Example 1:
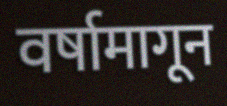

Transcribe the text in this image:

वर्षामागून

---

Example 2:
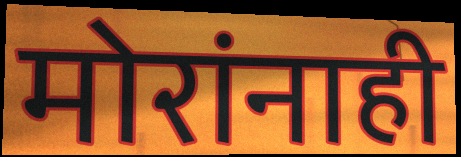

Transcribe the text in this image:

मोरांनाही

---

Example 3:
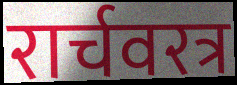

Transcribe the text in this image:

रार्चवरत्र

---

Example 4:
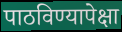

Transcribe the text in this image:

पाठविण्यापेक्षा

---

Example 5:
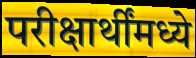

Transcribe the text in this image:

परीक्षार्थींमध्ये